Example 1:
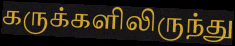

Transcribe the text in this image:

கருக்களிலிருந்து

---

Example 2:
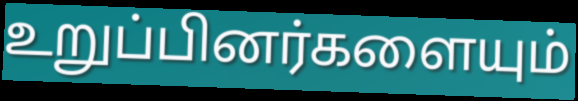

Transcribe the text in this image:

உறுப்பினர்களையும்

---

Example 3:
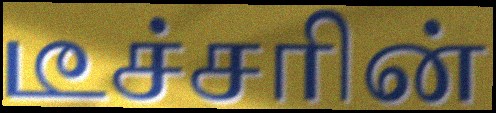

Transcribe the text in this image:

டீச்சரின்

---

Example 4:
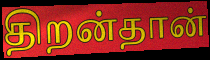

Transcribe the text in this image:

திறன்தான்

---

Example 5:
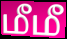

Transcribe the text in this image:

மீமீ